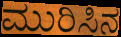
ಮುರಿಸಿನ